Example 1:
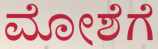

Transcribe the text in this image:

ಮೋಶೆಗೆ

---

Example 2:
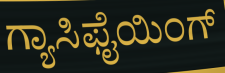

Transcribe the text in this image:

ಗ್ಯಾಸಿಫೈಯಿಂಗ್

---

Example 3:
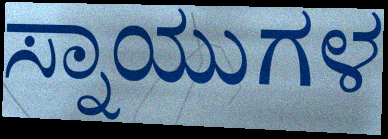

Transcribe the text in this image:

ಸ್ನಾಯುಗಳ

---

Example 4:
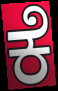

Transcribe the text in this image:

ಕೆ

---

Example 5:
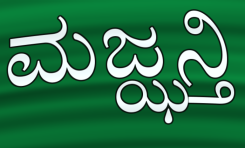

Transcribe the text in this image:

ಮಜ್ಝನ್ತಿ